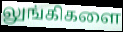
லுங்கிகளை